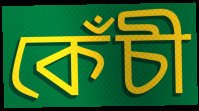
কেঁচী